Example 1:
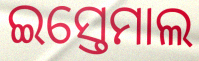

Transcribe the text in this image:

ଇସ୍ତେମାଲ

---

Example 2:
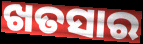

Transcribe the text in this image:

ଖତସାର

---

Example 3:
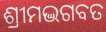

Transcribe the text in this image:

ଶ୍ରୀମଦ୍ଭଗବତ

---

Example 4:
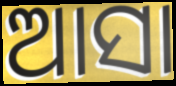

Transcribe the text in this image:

ଆସା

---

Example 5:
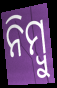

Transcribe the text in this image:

ନିମ୍ବୁ